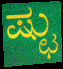
ಷ್ಟು